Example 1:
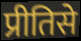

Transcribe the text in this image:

प्रीतिसे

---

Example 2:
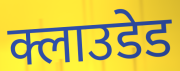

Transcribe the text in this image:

क्लाउडेड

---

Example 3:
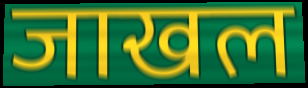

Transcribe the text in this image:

जाखल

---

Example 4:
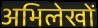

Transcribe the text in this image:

अभिलेखों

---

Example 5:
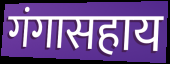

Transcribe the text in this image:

गंगासहाय